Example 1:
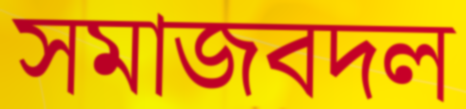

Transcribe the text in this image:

সমাজবদল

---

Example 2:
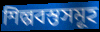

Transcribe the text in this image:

শিল্পবস্তুসমূহ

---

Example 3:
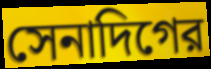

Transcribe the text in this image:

সেনাদিগের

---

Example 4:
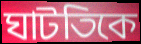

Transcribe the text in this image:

ঘাটতিকে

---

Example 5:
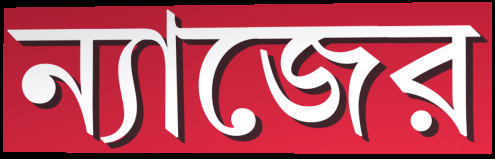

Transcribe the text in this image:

ন্যাজের